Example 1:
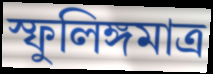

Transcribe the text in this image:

স্ফুলিঙ্গমাত্র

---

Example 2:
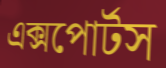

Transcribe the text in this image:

এক্সপোর্টস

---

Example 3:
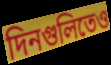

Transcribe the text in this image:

দিনগুলিতেও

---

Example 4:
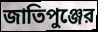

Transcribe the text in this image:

জাতিপুঞ্জের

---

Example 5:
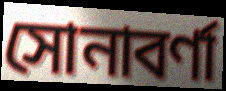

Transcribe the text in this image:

সোনাবর্ণা